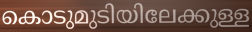
കൊടുമുടിയിലേക്കുള്ള